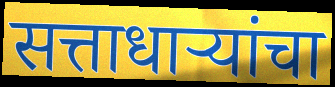
सत्ताधाऱ्यांचा